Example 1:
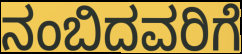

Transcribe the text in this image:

ನಂಬಿದವರಿಗೆ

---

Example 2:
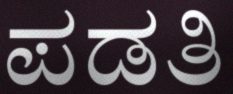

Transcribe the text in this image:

ಪಡತಿ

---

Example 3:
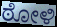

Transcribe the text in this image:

ಠೋಳಿ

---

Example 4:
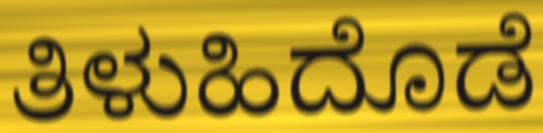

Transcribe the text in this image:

ತಿಳುಹಿದೊಡೆ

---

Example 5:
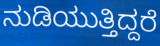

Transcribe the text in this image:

ನುಡಿಯುತ್ತಿದ್ದರೆ